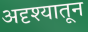
अदृश्यातून